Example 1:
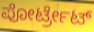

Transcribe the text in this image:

ಪೋರ್ಟ್ರೇಟ್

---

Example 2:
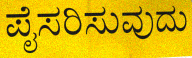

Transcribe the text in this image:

ಪೈಸರಿಸುವುದು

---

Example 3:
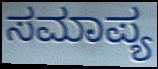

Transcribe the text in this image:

ಸಮಾಪ್ಯ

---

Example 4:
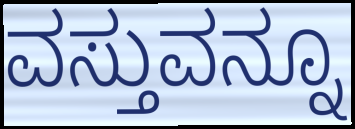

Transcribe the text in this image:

ವಸ್ತುವನ್ನೂ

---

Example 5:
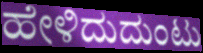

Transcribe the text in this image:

ಹೇಳಿದುದುಂಟು